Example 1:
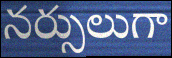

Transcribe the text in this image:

నర్సులుగా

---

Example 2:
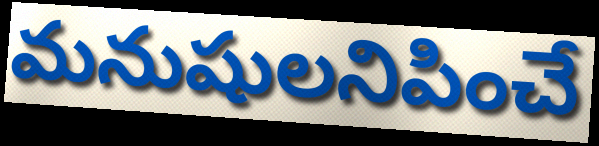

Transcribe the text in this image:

మనుషులనిపించే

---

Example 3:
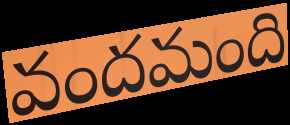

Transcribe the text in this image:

వందమంది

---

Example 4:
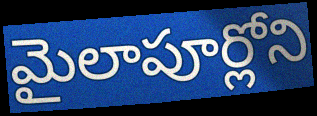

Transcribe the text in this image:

మైలాపూర్లోని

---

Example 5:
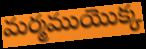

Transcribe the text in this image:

మర్మముయొక్క